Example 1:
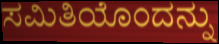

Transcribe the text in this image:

ಸಮಿತಿಯೊಂದನ್ನು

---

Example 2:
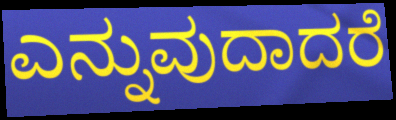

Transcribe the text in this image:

ಎನ್ನುವುದಾದರೆ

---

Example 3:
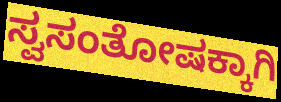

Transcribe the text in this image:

ಸ್ವಸಂತೋಷಕ್ಕಾಗಿ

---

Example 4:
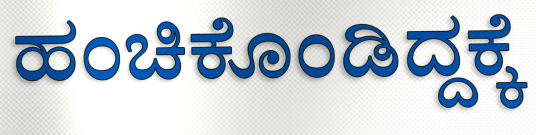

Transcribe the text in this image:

ಹಂಚಿಕೊಂಡಿದ್ದಕ್ಕೆ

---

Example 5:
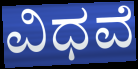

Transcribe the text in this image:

ವಿಧವೆ